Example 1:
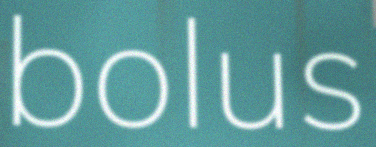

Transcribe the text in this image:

bolus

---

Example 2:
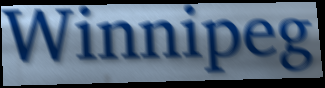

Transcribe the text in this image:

Winnipeg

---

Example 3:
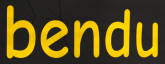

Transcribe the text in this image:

bendu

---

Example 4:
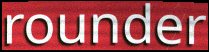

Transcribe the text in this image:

rounder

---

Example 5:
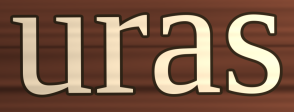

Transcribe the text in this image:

uras